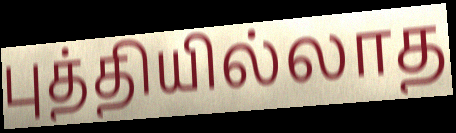
புத்தியில்லாத